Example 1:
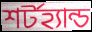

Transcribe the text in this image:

শর্টহ্যান্ড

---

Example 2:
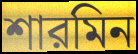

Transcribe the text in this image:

শারমিন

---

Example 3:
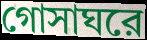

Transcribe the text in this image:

গোসাঘরে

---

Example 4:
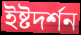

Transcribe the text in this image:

ইষ্টদর্শন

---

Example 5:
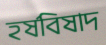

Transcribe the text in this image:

হর্ষবিষাদ